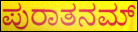
ಪುರಾತನಮ್